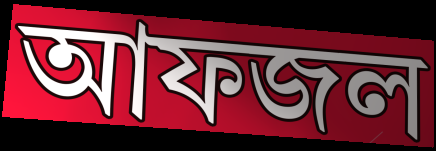
আফজল